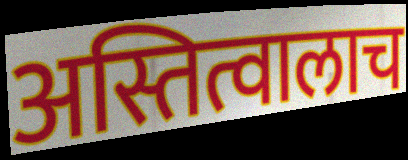
अस्तित्वालाच